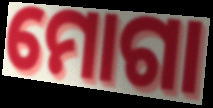
ମୋଗା